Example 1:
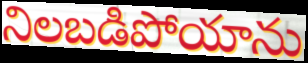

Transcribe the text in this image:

నిలబడిపోయాను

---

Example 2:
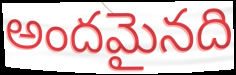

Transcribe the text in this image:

అందమైనది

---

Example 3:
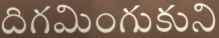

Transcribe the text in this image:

దిగమింగుకుని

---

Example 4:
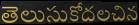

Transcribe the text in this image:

తెలుసుకోదలచిన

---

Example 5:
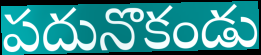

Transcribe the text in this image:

పదునొకండు